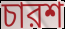
চারশ